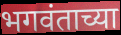
भगवंताच्या